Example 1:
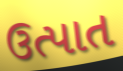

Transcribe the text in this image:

ઉત્પાત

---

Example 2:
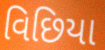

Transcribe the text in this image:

વિછિયા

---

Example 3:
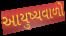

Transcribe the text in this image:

આયુષ્યવાળો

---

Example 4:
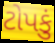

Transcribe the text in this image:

ટોપકું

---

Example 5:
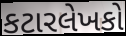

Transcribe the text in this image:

કટારલેખકો